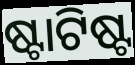
ଷ୍ଟାଟିଷ୍ଟ